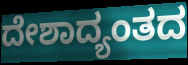
ದೇಶಾದ್ಯಂತದ